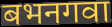
बभनगवा